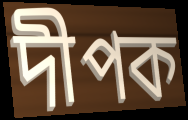
দীপক